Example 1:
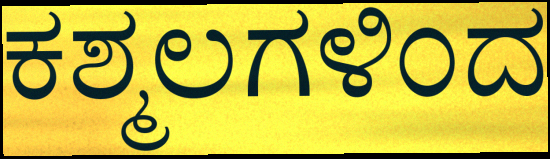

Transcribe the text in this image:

ಕಶ್ಮಲಗಳಿಂದ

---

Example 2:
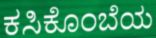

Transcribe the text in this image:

ಕಸಿಕೊಂಬೆಯ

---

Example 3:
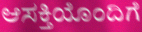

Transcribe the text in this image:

ಆಸಕ್ತಿಯೊಂದಿಗೆ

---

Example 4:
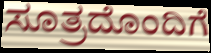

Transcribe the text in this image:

ಸೂತ್ರದೊಂದಿಗೆ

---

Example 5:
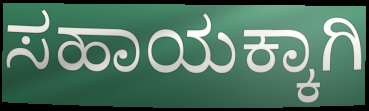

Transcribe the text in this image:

ಸಹಾಯಕ್ಕಾಗಿ